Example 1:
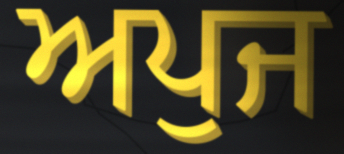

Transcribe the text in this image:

ਅਪੁਜ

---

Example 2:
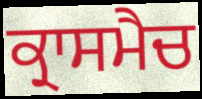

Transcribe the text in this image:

ਕ੍ਰਾਸਮੈਚ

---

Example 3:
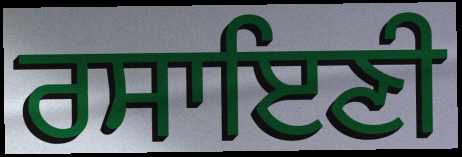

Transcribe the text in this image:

ਰਸਾਇਣੀ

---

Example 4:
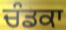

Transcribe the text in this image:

ਚੰਡਕਾ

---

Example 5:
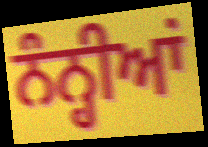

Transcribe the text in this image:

ਨੰਨ੍ਹੀਆਂ